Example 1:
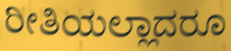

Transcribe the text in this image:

ರೀತಿಯಲ್ಲಾದರೂ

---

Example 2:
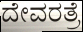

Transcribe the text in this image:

ದೇವರತ್ರೆ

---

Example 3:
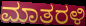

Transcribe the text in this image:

ಮಾತರಳಿ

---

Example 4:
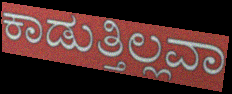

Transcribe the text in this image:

ಕಾಡುತ್ತಿಲ್ಲವಾ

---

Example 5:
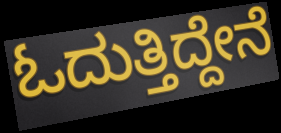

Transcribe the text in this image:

ಓದುತ್ತಿದ್ದೇನೆ